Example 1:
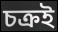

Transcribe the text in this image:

চক্ৰই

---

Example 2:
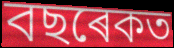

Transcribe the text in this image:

বছৰেকত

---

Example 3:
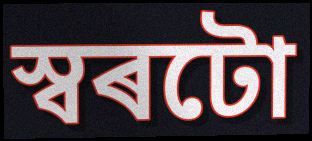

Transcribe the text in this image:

স্বৰটো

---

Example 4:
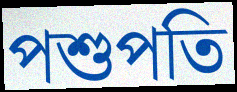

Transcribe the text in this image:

পশুপতি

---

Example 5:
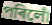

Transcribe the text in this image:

পৰিলোঁ